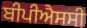
ਬੀਪੀਐਸਸੀ